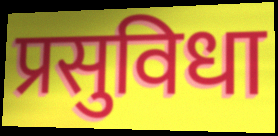
प्रसुविधा